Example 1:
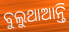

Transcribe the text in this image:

ବୁଲୁଥାଆନ୍ତି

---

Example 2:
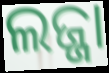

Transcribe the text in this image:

ଲଜ୍ଜା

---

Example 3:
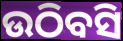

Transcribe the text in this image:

ଉଠିବସି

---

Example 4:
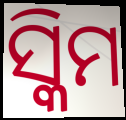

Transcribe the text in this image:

ସ୍କିମ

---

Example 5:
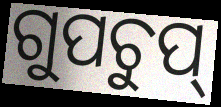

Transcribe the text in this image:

ଗୁପଚୁପ୍